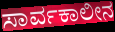
ಸಾರ್ವಕಾಲೀನ